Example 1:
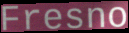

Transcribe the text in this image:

Fresno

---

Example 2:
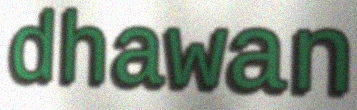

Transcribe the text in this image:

dhawan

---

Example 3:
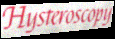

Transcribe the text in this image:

Hysteroscopy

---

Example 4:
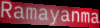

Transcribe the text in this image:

Ramayanma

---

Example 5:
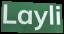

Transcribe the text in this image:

Layli